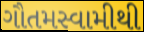
ગૌતમસ્વામીથી